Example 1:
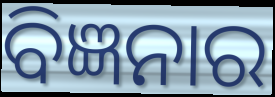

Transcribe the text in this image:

ବିଜ୍ଞନାର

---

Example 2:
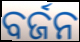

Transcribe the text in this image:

ବର୍ଜନ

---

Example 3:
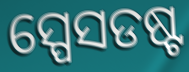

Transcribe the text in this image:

ସ୍ପେସଡଷ୍ଟ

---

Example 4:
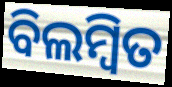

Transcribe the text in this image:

ବିଲମ୍ବିତ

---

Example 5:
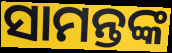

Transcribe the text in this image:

ସାମନ୍ତଙ୍କ